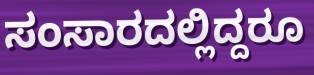
ಸಂಸಾರದಲ್ಲಿದ್ದರೂ